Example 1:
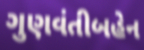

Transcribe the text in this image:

ગુણવંતીબહેન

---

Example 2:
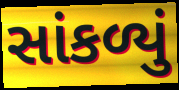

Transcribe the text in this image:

સાંકળ્યું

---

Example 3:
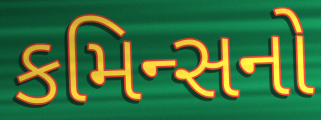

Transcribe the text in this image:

કમિન્સનો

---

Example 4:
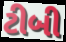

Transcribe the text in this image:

ટીબી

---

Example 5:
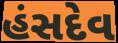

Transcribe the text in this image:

હંસદેવ